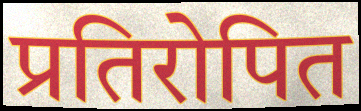
प्रतिरोपित